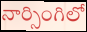
నార్సింగిలో